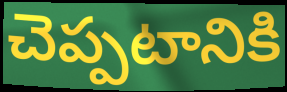
చెప్పటానికి